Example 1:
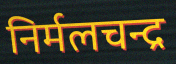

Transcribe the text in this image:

निर्मलचन्द्र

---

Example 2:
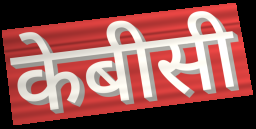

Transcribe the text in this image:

केबीसी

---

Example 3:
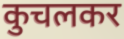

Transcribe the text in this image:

कुचलकर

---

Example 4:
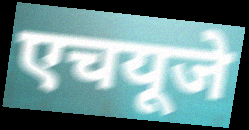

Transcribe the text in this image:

एचयूजे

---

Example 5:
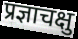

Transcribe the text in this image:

प्रज्ञाचक्षु